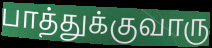
பாத்துக்குவாரு